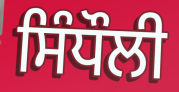
ਸਿੰਧੌਲੀ